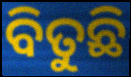
ବିତୁଛି